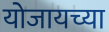
योजायच्या